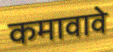
कमावावे